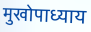
मुखोपाध्याय